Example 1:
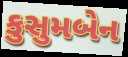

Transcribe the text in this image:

કુસુમબેન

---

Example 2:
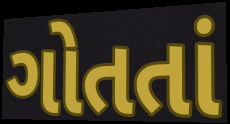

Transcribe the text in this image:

ગોતતાં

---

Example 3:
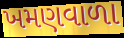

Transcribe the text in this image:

ખમણવાળા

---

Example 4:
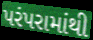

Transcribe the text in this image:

પરંપરામાંથી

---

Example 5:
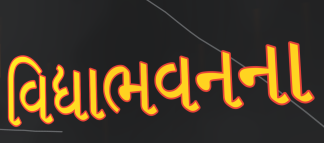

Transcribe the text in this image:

વિદ્યાભવનના